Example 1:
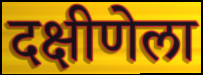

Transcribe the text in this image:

दक्षीणेला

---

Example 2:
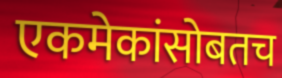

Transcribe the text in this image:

एकमेकांसोबतच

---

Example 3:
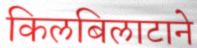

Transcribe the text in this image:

किलबिलाटाने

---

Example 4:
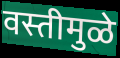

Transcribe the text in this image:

वस्तीमुळे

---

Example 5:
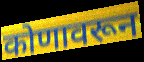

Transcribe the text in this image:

कोणावरून